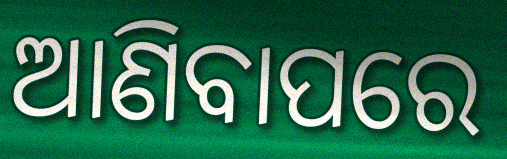
ଆଣିବାପରେ